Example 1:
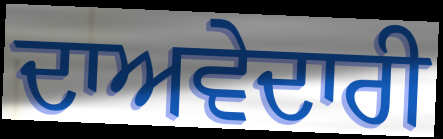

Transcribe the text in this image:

ਦਾਅਵੇਦਾਰੀ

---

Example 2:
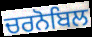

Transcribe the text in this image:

ਚਰਨੋਬਿਲ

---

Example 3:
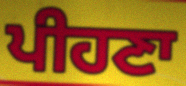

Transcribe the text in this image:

ਪੀਹਣਾ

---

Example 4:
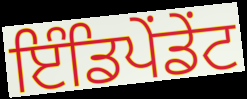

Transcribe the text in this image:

ਇੰਡਿਪੇਂਡੇਂਟ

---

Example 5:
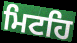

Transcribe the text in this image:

ਮਿਟਹਿ